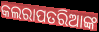
କଲରାପତରିଆଙ୍କ